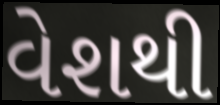
વેશથી